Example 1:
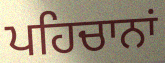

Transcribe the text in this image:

ਪਹਿਚਾਨਾਂ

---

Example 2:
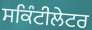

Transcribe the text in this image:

ਸਕਿੰਟੀਲੇਟਰ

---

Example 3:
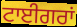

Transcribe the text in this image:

ਟਾਈਗਰਾਂ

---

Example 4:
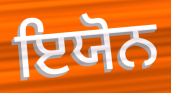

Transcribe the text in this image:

ਇਯੋਨ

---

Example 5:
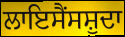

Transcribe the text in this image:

ਲਾਇਸੈਂਸਸ਼ੁਦਾ